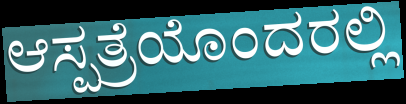
ಆಸ್ಪತ್ರೆಯೊಂದರಲ್ಲಿ